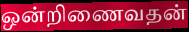
ஒன்றிணைவதன்